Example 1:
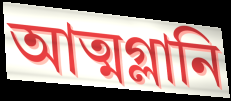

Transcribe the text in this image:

আত্মগ্লানি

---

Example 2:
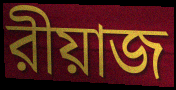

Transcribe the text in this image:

রীয়াজ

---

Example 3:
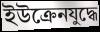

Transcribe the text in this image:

ইউক্রেনযুদ্ধে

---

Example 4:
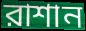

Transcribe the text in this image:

রাশান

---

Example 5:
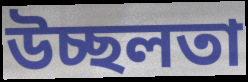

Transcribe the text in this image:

উচ্ছলতা